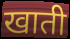
खाती